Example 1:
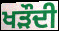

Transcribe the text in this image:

ਖੜੌਦੀ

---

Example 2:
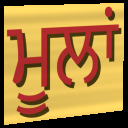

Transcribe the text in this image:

ਮੂਲਾਂ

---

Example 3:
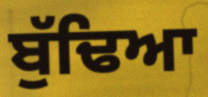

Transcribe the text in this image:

ਬੁੱਢਿਆ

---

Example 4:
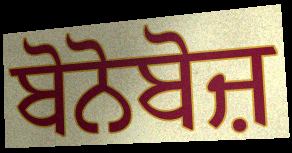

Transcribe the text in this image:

ਬੋਨੋਬੋਜ਼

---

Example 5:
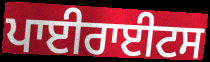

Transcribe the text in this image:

ਪਾਈਰਾਈਟਸ